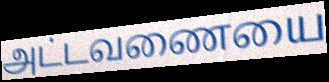
அட்டவணையை